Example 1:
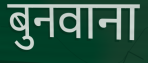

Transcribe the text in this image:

बुनवाना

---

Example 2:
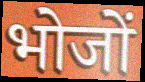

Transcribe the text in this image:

भोजों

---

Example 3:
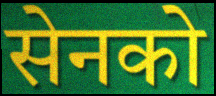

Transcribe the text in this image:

सेनको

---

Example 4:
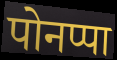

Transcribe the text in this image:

पोनप्पा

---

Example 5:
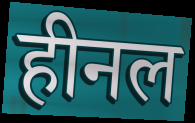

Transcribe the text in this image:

हीनल